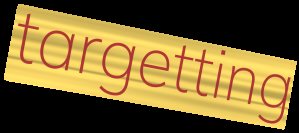
targetting